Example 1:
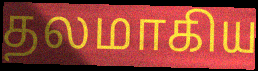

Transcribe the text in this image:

தலமாகிய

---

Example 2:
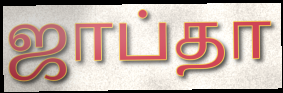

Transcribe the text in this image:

ஜாப்தா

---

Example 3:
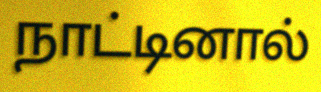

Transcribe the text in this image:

நாட்டினால்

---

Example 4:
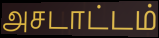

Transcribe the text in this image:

அசடாட்டம்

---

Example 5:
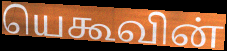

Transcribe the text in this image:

யெகூவின்